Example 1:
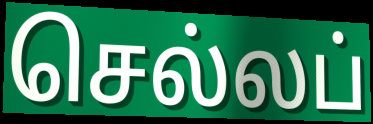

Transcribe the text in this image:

செல்லப்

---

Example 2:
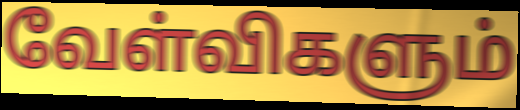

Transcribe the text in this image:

வேள்விகளும்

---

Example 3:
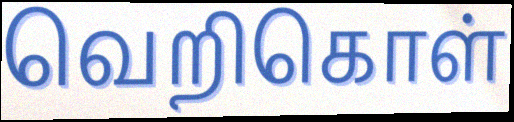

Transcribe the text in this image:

வெறிகொள்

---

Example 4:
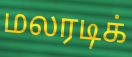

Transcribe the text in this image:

மலரடிக்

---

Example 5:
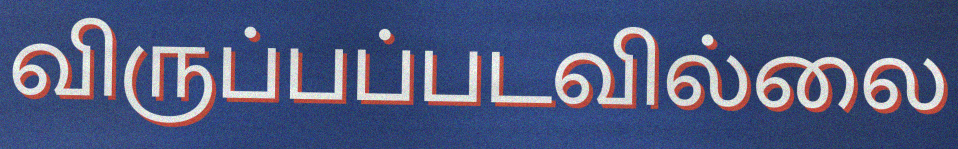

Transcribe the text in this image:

விருப்பப்படவில்லை